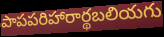
పాపపరిహారార్థబలియగు